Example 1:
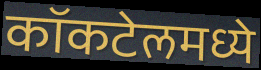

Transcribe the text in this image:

कॉकटेलमध्ये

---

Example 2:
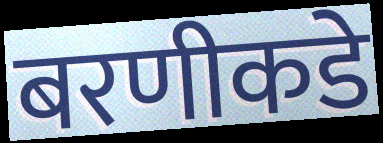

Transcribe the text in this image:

बरणीकडे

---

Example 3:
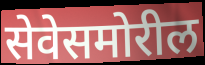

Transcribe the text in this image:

सेवेसमोरील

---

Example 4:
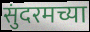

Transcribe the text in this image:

सुंदरमच्या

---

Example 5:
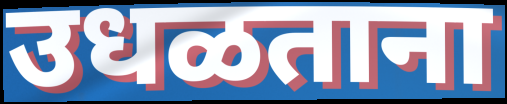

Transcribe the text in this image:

उधळताना